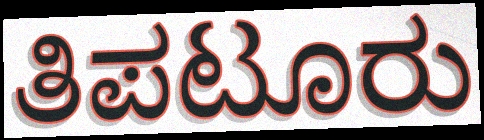
ತಿಪಟೂರು